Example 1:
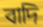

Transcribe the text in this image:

বাদি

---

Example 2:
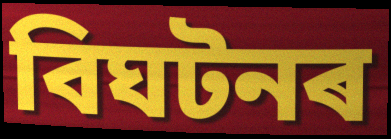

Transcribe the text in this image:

বিঘটনৰ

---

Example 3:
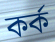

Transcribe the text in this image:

কৰ্ক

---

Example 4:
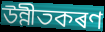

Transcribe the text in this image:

উন্নীতকৰণ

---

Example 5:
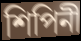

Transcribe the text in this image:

শিপিনী